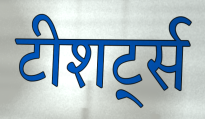
टीशर्ट्स